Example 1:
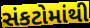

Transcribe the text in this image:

સંકટોમાંથી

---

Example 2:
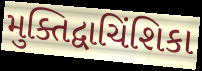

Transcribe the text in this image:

મુક્તિદ્વાચિંશિકા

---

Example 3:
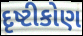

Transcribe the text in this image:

દૃષ્ટીકોણ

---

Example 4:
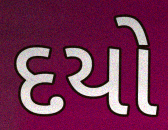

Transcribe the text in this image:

દયો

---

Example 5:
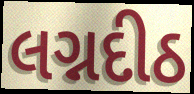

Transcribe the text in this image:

લગ્નદીઠ